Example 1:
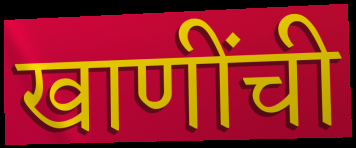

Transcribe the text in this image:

खाणींची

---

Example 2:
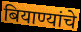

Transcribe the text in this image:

बियाण्यांचे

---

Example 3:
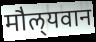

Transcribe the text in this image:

मौल्यवान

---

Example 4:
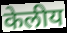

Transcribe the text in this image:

केलीय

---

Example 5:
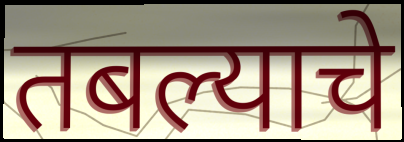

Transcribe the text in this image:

तबल्याचे